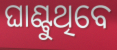
ଘାଣ୍ଟୁଥିବେ